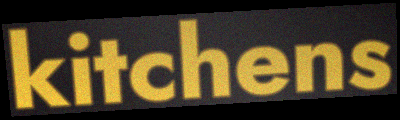
kitchens